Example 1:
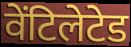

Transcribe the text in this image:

वेंटिलेटेड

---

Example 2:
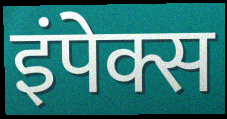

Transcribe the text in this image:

इंपेक्स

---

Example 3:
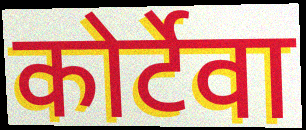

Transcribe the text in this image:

कोर्टेवा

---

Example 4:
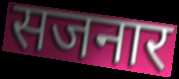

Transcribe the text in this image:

सजनार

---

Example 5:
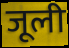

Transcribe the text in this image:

जूली